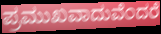
ಪ್ರಮುಖವಾದುವೆಂದರೆ